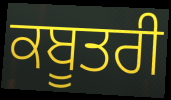
ਕਬੂਤਰੀ